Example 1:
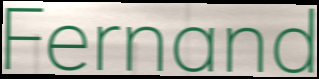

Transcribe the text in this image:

Fernand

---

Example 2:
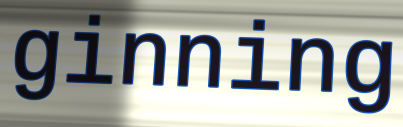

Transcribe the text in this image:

ginning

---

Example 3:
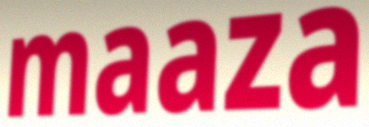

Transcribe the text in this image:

maaza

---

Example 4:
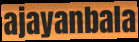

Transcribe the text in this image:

ajayanbala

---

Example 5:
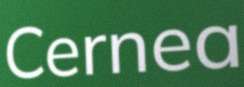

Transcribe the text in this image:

Cernea